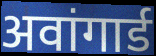
अवांगार्ड